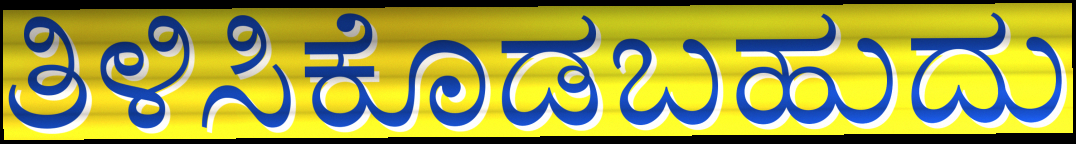
ತಿಳಿಸಿಕೊಡಬಹುದು